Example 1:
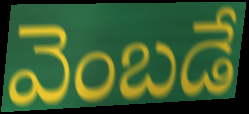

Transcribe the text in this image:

వెంబడే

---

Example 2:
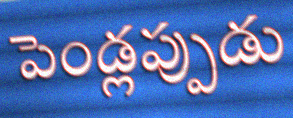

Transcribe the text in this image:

పెండ్లప్పుడు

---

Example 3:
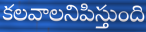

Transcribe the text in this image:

కలవాలనిపిస్తుంది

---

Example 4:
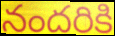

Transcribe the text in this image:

నందరికి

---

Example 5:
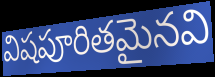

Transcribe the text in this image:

విషపూరితమైనవి